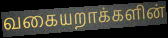
வகையறாக்களின்